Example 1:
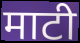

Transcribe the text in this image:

माटी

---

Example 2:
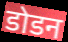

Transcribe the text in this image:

डोडन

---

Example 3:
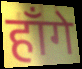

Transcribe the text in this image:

हाँगे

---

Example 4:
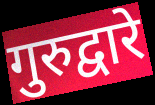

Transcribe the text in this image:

गुरुद्वारे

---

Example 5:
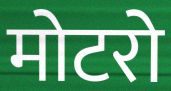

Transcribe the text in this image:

मोटरो